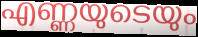
എണ്ണയുടെയും